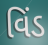
વિંડ